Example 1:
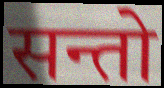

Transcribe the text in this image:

सन्तो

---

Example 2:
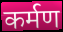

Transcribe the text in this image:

कर्मण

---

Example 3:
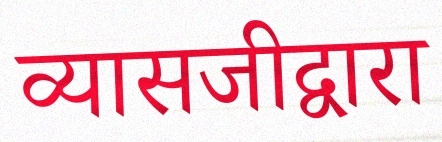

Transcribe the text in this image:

व्यासजीद्वारा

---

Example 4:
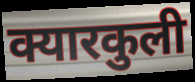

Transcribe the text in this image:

क्यारकुली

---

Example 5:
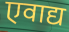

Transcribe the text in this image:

एवाद्य